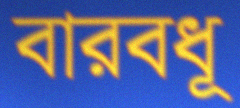
বারবধূ